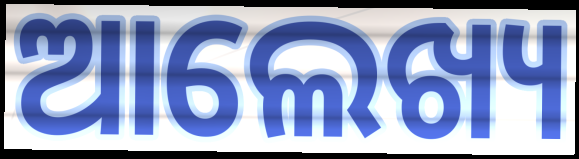
ଆଲେଖ୍ୟ